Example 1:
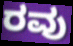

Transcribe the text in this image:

ರವು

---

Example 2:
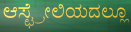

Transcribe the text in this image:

ಆಸ್ಟ್ರೇಲಿಯದಲ್ಲೂ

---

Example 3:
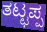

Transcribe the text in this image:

ತಟ್ಟಪ್ಪ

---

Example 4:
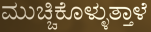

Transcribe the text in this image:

ಮುಚ್ಚಿಕೊಳ್ಳುತ್ತಾಳೆ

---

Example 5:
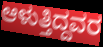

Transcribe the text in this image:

ಆಳುತ್ತಿದ್ದವರ